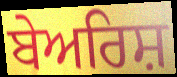
ਬੇਅਰਿਸ਼